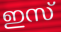
ഇസ്